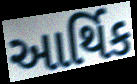
આર્થિક